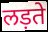
लड़ते